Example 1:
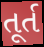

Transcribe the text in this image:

તૂર્ત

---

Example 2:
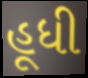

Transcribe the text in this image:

હૂધી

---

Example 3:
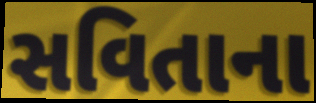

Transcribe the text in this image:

સવિતાના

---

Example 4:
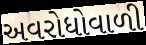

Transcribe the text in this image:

અવરોધોવાળી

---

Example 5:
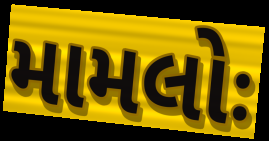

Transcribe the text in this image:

મામલોઃ